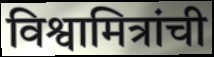
विश्वामित्रांची